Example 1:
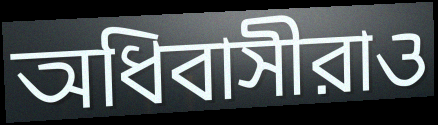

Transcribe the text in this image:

অধিবাসীরাও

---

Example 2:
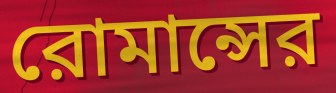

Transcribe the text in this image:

রোমান্সের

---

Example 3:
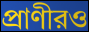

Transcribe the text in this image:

প্রাণীরও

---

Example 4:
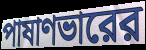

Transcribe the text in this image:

পাষাণভারের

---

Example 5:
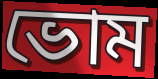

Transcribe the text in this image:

ভোম